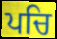
ਪਚਿ